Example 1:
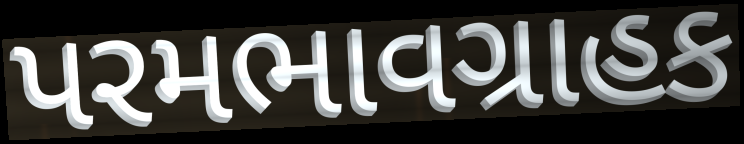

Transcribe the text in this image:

પરમભાવગ્રાહક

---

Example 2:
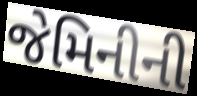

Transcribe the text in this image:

જેમિનીની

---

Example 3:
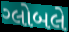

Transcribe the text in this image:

ગ્લોબલે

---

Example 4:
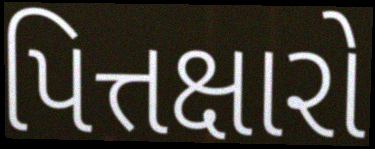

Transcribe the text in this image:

પિત્તક્ષારો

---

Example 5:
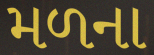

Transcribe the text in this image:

મળના